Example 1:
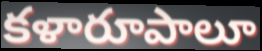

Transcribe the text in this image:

కళారూపాలూ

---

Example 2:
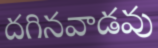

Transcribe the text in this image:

దగినవాడవు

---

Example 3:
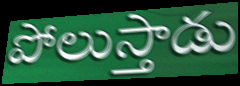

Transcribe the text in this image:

పోలుస్తాడు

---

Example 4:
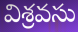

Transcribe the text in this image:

విశ్రవసు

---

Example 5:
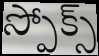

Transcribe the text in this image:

స్పోక్స్